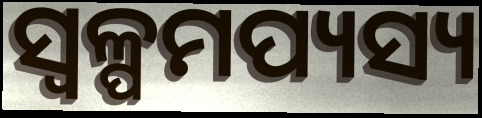
ସ୍ୱଳ୍ପମପ୍ୟସ୍ୟ